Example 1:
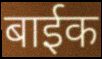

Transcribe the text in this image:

बाईक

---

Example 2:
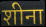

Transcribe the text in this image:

शीना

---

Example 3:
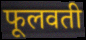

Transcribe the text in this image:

फूलवती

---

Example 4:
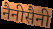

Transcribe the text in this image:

नैनीसैनी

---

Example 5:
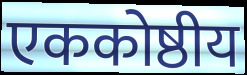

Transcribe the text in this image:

एककोष्ठीय